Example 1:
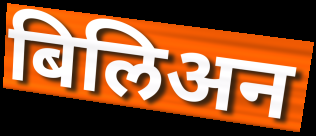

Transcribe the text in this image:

बिलिअन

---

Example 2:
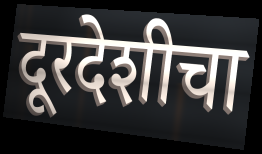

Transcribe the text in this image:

दूरदेशीचा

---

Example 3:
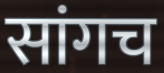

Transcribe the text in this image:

सांगच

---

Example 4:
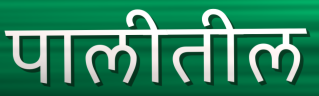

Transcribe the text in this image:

पालीतील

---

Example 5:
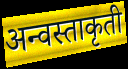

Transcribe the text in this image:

अन्वस्ताकृती